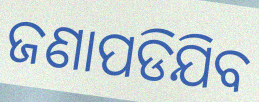
ଜଣାପଡିଯିବ